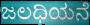
ಜಲಧಿಯನೆ